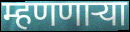
म्हणणाऱ्या